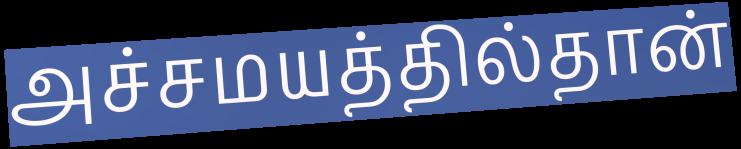
அச்சமயத்தில்தான்